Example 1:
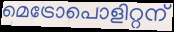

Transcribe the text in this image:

മെട്രോപൊളിറ്റന്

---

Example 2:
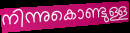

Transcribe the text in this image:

നിന്നുകൊണ്ടുള്ള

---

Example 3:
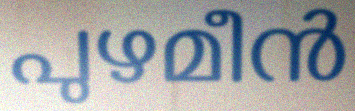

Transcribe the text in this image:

പുഴമീൻ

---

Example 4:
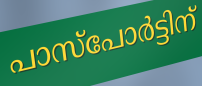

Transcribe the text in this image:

പാസ്പോർട്ടിന്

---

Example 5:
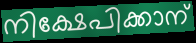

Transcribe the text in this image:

നിക്ഷേപിക്കാന്